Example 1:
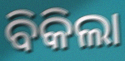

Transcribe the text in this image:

ବିକିଲା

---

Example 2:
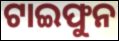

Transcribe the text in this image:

ଟାଇଫୁନ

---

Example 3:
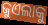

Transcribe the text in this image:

ଜୁଏଲାକୁ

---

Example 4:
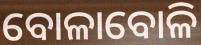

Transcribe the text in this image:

ବୋଳାବୋଳି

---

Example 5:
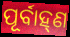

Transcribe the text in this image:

ପୂର୍ବାହ୍‌ଣ